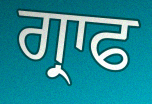
ਗ੍ਰਾਫ